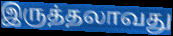
இருத்தலாவது